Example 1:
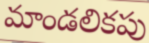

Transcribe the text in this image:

మాండలికపు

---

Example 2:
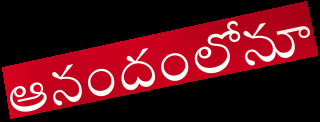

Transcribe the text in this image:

ఆనందంలోనూ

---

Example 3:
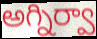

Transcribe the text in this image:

అగ్నిర్వా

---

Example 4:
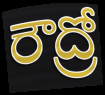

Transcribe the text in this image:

రౌద్రో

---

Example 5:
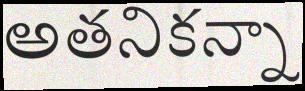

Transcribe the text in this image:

అతనికన్నా